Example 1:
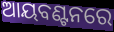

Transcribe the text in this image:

ଆୟବଣ୍ଟନରେ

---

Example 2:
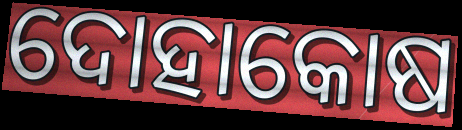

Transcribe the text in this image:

ଦୋହାକୋଷ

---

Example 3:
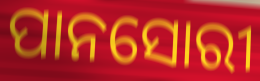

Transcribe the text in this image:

ପାନସୋରୀ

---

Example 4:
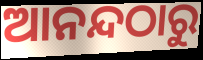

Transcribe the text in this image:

ଆନନ୍ଦଠାରୁ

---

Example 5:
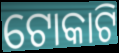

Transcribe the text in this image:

ଟୋକାଟି